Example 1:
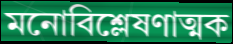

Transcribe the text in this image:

মনোবিশ্লেষণাত্মক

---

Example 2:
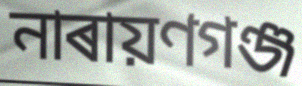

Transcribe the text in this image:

নাৰায়ণগঞ্জ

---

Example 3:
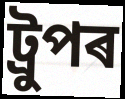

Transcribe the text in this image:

ট্ৰুপৰ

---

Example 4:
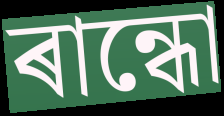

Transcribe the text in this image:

ৰান্ধো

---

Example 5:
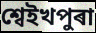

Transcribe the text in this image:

শ্বেইখপুৰা